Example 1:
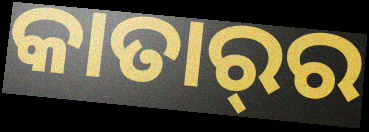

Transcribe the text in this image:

କାତାର୍‌ର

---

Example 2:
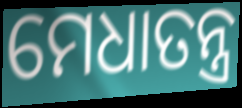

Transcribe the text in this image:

ମେଧାତନ୍ତ୍ର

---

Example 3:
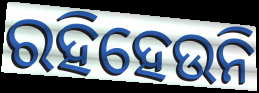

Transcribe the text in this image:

ରହିହେଉନି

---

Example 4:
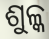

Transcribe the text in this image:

ଶୁଳ୍କ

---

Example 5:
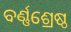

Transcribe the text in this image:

ବର୍ଣ୍ଣଶ୍ରେଷ୍ଠ